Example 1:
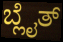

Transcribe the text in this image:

ಬ್ಲೈತ್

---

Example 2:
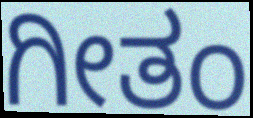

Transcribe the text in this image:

ಗೀತಂ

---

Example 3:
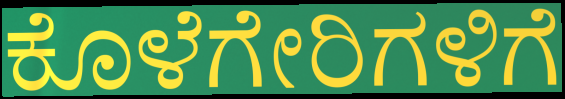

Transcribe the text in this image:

ಕೊಳೆಗೇರಿಗಳಿಗೆ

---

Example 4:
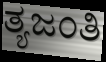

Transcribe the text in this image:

ತ್ಯಜಂತಿ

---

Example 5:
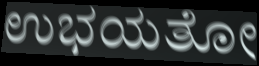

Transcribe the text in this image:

ಉಭಯತೋ